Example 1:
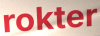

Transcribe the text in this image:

rokter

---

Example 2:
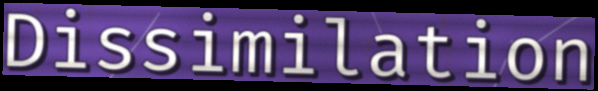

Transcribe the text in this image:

Dissimilation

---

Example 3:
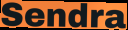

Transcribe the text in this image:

Sendra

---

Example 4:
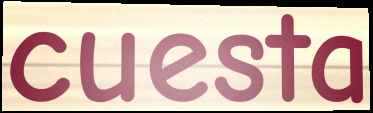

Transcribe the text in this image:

cuesta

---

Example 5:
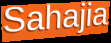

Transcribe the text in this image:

Sahajia